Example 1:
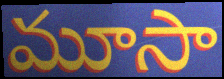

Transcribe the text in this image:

మూసా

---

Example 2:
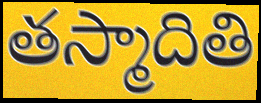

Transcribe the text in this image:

తస్మాదితి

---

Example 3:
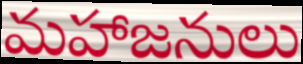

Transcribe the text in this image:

మహాజనులు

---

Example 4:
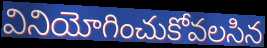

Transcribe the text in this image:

వినియోగించుకోవలసిన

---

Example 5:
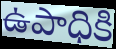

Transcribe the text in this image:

ఉపాధికి